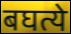
बघत्ये